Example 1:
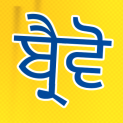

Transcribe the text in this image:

ਬ੍ਰੈਵੋ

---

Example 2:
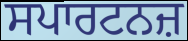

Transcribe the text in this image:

ਸਪਾਰਟਨਜ਼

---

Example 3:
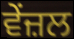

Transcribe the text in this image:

ਵੇਂਜ਼ਲ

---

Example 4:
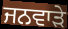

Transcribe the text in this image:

ਜਨਵਾੜੇ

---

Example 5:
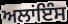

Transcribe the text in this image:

ਅਲਾਂਇੰਸ